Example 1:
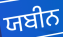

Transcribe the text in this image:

ਯਬੀਨ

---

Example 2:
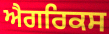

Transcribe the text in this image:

ਐਗਰਿਕਸ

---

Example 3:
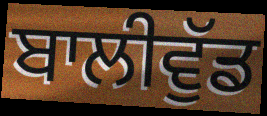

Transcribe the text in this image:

ਬਾਲੀਵੁੱਡ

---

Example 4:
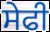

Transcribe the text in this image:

ਸੇਫੀ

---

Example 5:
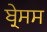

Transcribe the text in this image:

ਬ੍ਰੇਸਸ